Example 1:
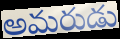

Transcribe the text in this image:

అమరుడు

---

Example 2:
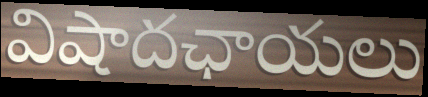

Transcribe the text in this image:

విషాదఛాయలు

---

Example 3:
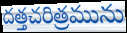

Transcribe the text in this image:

దత్తచరిత్రమును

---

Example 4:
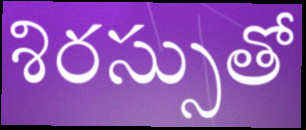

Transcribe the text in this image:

శిరస్సుతో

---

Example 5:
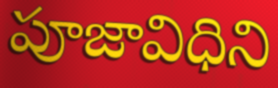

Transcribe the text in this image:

పూజావిధిని